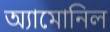
অ্যামোনিল